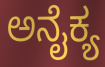
ಅನೈಕ್ಯ